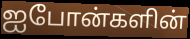
ஐபோன்களின்